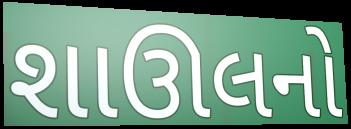
શાઊલનો